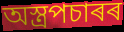
অস্ত্ৰপচাৰৰ